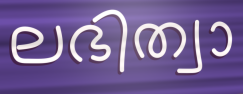
ലഭിത്വാ